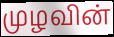
முழவின்